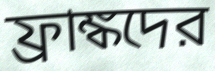
ফ্রাঙ্কদের